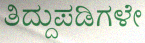
ತಿದ್ದುಪಡಿಗಳೇ